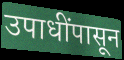
उपाधींपासून